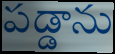
పడ్డాను